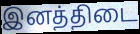
இனத்திடை